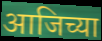
आजिच्या